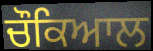
ਚੌਕਿਆਲ